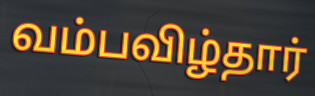
வம்பவிழ்தார்